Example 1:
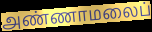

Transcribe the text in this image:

அண்ணாமலைப்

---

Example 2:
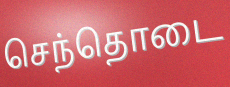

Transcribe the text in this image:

செந்தொடை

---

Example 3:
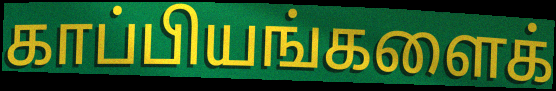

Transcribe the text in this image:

காப்பியங்களைக்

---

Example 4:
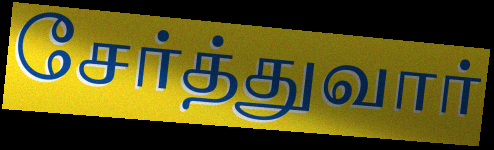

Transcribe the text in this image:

சேர்த்துவார்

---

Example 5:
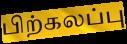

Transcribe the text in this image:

பிற்கலப்பு